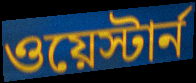
ওয়েস্টার্ন